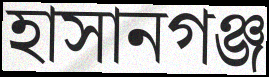
হাসানগঞ্জ